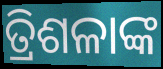
ତ୍ରିଶଳାଙ୍କ